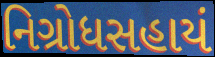
નિગ્રોધસહાયં